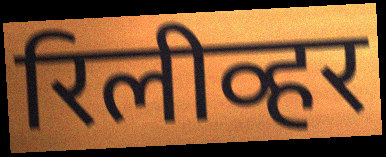
रिलीव्हर